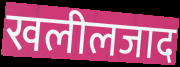
खलीलजाद